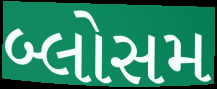
બ્લોસમ